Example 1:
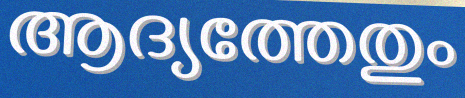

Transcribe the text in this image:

ആദ്യത്തേതും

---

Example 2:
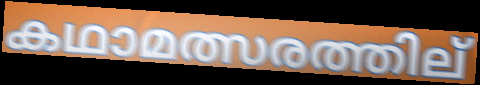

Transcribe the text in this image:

കഥാമത്സരത്തില്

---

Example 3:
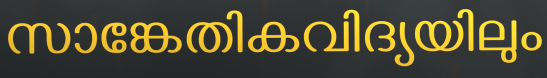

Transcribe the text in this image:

സാങ്കേതികവിദ്യയിലും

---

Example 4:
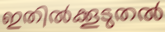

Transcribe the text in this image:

ഇതിൽക്കൂടുതൽ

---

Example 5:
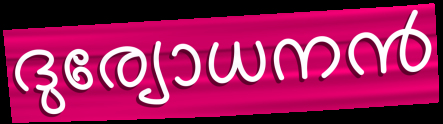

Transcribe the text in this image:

ദുര്യോധനൻ